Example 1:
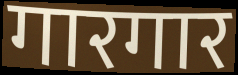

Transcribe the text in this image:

गारगार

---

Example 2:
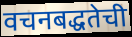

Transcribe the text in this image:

वचनबद्धतेची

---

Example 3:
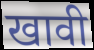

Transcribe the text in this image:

खावी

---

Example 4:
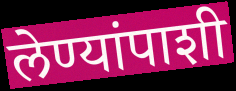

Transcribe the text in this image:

लेण्यांपाशी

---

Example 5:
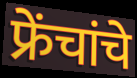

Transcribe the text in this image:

फ्रेंचांचे